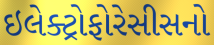
ઇલેક્ટ્રોફોરેસીસનો